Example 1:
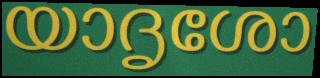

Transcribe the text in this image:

യാദൃശോ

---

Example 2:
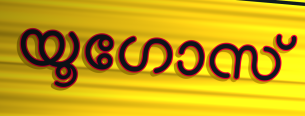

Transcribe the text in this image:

യൂഗോസ്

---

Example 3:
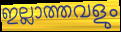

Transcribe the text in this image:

ഇല്ലാത്തവളും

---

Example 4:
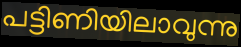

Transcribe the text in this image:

പട്ടിണിയിലാവുന്നു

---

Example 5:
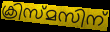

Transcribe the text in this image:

ക്രിസ്മസിന്